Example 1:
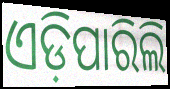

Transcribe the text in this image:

ଏଡ଼ିପାରିଲି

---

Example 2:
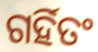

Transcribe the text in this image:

ଗର୍ହିତଂ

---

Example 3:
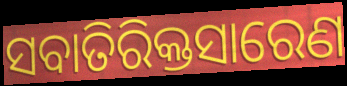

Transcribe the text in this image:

ସବାତିରିକ୍ତସାରେଣ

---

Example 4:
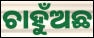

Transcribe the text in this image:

ଚାହୁଁଅଛ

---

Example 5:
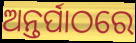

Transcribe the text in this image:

ଅନ୍ତର୍ପାଠରେ